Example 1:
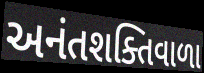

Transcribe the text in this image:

અનંતશક્તિવાળા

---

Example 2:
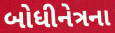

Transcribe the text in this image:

બોધીનેત્રના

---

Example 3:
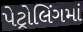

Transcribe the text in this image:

પેટ્રોલિંગમાં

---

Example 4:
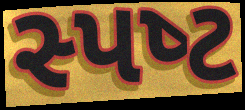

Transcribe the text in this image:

સ્પષ્‍ટ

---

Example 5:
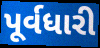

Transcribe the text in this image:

પૂર્વધારી